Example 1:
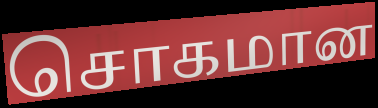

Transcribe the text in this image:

சொகமான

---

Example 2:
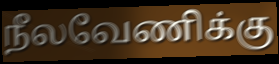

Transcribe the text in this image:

நீலவேணிக்கு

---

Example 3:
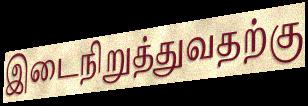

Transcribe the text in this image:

இடைநிறுத்துவதற்கு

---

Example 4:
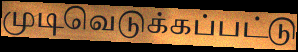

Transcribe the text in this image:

முடிவெடுக்கப்பட்டு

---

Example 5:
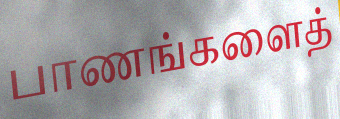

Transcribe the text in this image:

பாணங்களைத்